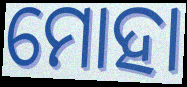
ମୋହା